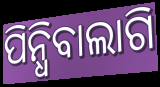
ପିନ୍ଧିବାଲାଗି